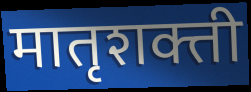
मातृशक्ती